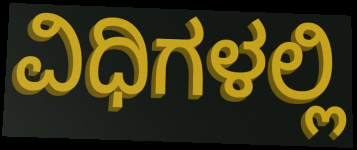
ವಿಧಿಗಳಲ್ಲಿ